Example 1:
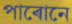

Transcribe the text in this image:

পাৰোনে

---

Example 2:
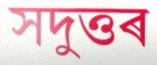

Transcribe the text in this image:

সদুত্তৰ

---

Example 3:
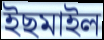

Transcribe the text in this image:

ইছমাইল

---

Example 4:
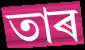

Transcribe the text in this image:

তাৰ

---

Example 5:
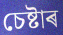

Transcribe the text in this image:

চেষ্টাৰ